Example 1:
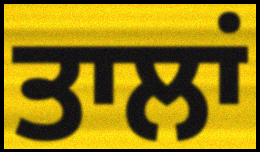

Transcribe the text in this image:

ਤਾਲਾਂ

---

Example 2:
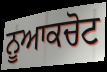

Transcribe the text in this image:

ਨੂਆਕਚੋਟ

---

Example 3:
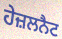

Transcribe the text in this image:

ਹੇਜ਼ਲਨੈਟ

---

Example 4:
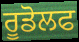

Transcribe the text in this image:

ਰੂਡੋਲਫ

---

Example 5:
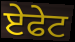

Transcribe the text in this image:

ਏਫੇਟ